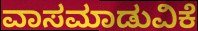
ವಾಸಮಾಡುವಿಕೆ